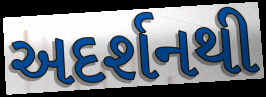
અદર્શનથી